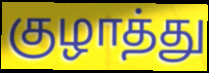
குழாத்து